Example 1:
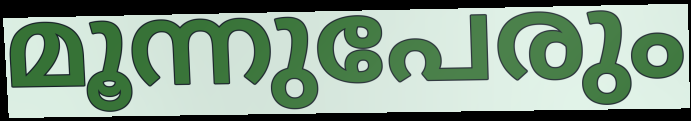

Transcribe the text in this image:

മൂന്നുപേരും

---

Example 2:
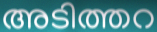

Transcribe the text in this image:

അടിത്തറ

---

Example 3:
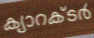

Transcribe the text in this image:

ക്യാറക്ടർ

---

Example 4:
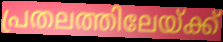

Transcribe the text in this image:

പ്രതലത്തിലേയ്ക്ക്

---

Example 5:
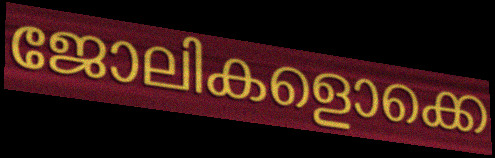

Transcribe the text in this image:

ജോലികളൊക്കെ